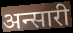
अन्सारी